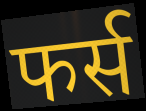
फर्स